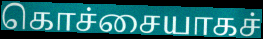
கொச்சையாகச்